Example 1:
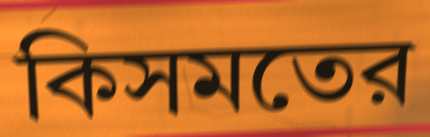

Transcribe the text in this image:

কিসমতের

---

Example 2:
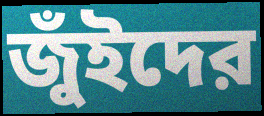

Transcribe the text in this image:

জুঁইদের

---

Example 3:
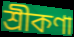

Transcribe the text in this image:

শ্রীকণা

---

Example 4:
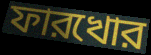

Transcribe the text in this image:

ফারখোর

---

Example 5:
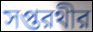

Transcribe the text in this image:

সপ্তরথীর